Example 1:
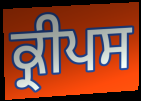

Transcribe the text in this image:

ਕ੍ਰੀਪਸ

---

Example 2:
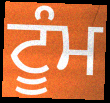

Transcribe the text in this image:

ਟੂੰਮ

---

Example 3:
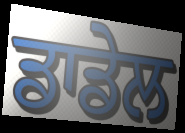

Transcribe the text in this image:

ਡਾਡੇਲ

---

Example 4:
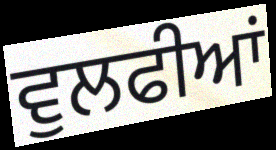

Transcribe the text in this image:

ਵੁਲਫੀਆਂ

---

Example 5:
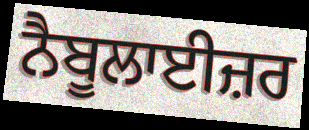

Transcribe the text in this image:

ਨੈਬੂਲਾਈਜ਼ਰ